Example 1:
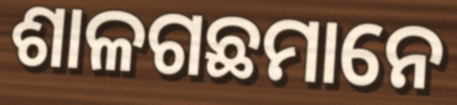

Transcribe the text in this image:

ଶାଳଗଛମାନେ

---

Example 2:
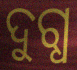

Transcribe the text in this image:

ଦୁଗ୍ଧ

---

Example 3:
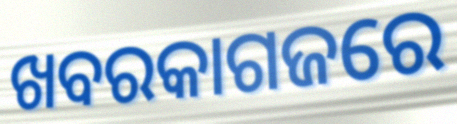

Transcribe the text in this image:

ଖବରକାଗଜରେ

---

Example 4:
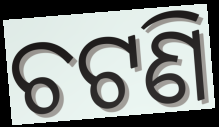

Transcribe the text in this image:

ଚଟଣି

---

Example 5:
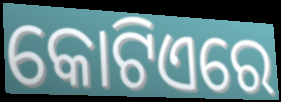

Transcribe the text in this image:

କୋଟିଏରେ